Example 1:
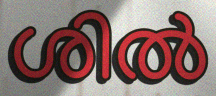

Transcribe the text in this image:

ശിൽ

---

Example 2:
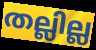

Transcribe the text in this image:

തല്ലില്ല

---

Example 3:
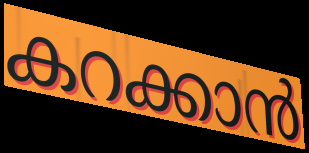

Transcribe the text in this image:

കറക്കാൻ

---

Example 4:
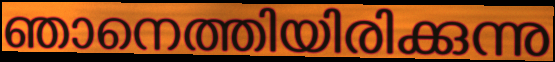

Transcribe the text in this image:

ഞാനെത്തിയിരിക്കുന്നു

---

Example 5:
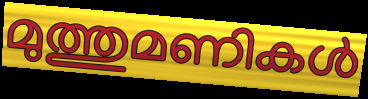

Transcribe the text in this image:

മുത്തുമണികൾ